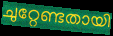
ചുറ്റേണ്ടതായി